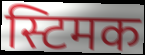
स्टिमक